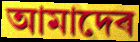
আমাদেৰ